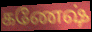
கணேஷ்